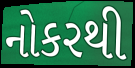
નોકરથી